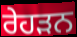
ਰੇਹੜਨ